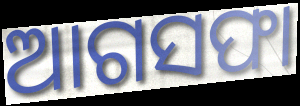
ଆଗସଫା